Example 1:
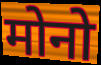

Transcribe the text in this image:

मोनो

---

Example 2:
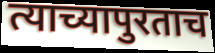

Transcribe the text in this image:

त्याच्यापुरताच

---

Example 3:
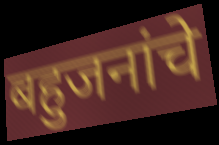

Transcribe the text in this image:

बहुजनांचे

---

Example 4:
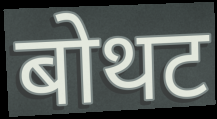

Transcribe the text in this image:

बोथट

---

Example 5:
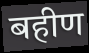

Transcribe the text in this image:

बहीण